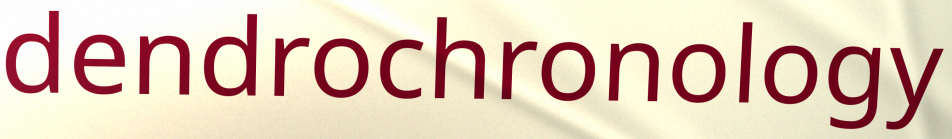
dendrochronology